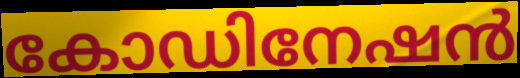
കോഡിനേഷൻ